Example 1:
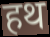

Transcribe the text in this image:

हथ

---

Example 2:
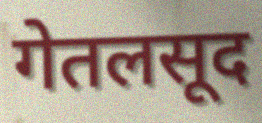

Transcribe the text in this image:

गेतलसूद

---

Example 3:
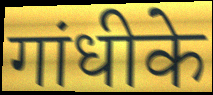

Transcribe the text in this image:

गांधीके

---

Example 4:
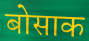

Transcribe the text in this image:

बोसाक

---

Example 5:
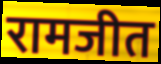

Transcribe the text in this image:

रामजीत